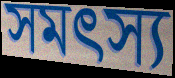
সমৎস্য